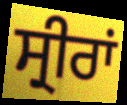
ਸ੍ਰੀਰਾਂ